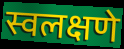
स्वलक्षणे